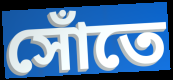
সোঁতে